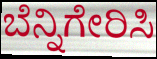
ಬೆನ್ನಿಗೇರಿಸಿ